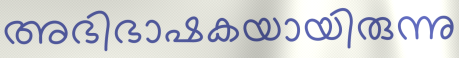
അഭിഭാഷകയായിരുന്നു